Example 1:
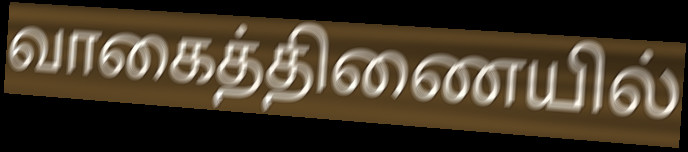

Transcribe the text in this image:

வாகைத்திணையில்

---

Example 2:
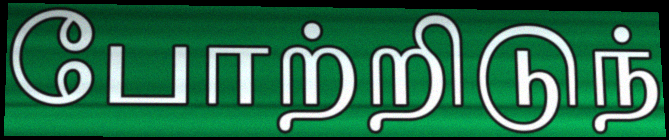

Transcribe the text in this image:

போற்றிடுந்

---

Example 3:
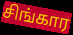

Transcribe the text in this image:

சிங்கார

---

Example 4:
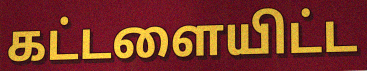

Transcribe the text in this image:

கட்டளையிட்ட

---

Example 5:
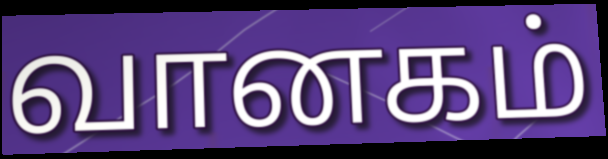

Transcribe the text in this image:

வானகம்